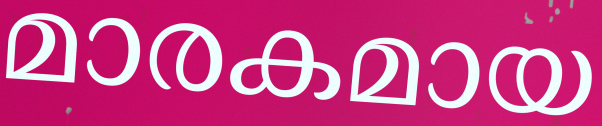
മാരകമായ